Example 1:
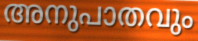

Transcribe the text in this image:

അനുപാതവും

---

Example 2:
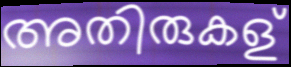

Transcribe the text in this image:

അതിരുകള്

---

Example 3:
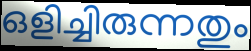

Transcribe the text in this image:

ഒളിച്ചിരുന്നതും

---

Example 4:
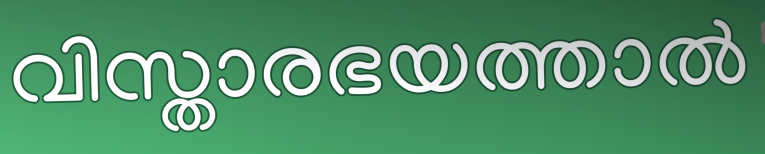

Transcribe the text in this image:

വിസ്താരഭയത്താൽ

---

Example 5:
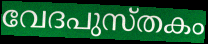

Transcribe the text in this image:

വേദപുസ്തകം